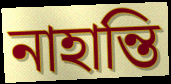
নাহান্তি